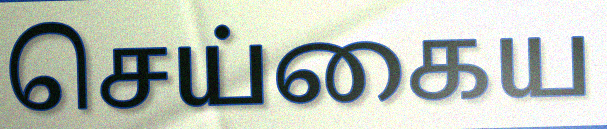
செய்கைய